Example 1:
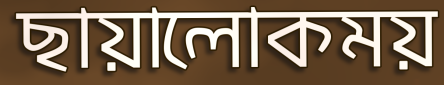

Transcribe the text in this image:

ছায়ালোকময়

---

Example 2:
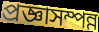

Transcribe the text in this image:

প্রজ্ঞাসম্পন্ন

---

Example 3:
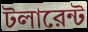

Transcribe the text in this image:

টলারেন্ট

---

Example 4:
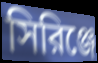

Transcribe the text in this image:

সিরিঞ্জে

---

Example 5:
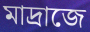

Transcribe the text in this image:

মাদ্রাজে